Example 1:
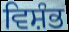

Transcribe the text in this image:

ਵਿਸ਼ੰਭ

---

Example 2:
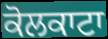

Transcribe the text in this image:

ਕੋਲਕਾਟਾ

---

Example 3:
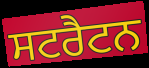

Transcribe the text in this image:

ਸਟਰੈਟਨ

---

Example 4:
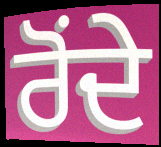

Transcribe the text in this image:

ਰੋਂਦੇ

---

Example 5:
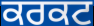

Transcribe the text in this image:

ਕਰਕਟ